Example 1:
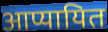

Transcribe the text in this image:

आप्यायित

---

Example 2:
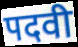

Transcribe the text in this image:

पदवी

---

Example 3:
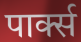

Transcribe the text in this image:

पार्क्स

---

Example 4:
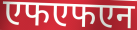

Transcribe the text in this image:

एफएफएन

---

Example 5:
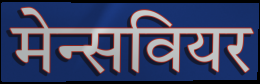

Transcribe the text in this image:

मेन्सवियर